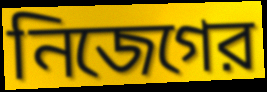
নিজেগের